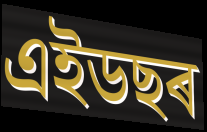
এইডছৰ